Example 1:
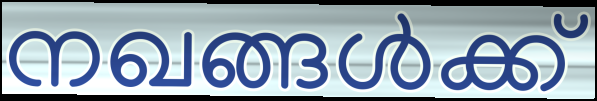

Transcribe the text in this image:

നഖങ്ങൾക്ക്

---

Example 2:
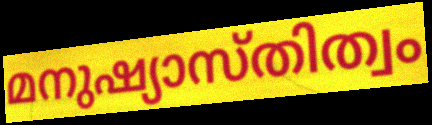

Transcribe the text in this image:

മനുഷ്യാസ്തിത്വം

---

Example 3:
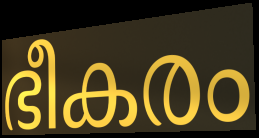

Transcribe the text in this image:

ഭീകരം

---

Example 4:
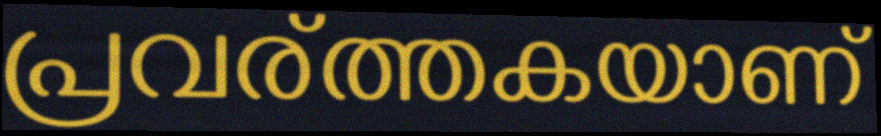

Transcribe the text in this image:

പ്രവര്ത്തകയാണ്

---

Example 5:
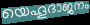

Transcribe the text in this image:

യെഹൂദാജനം